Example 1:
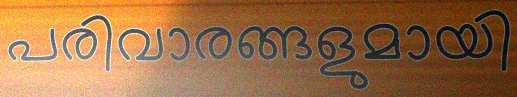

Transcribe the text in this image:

പരിവാരങ്ങളുമായി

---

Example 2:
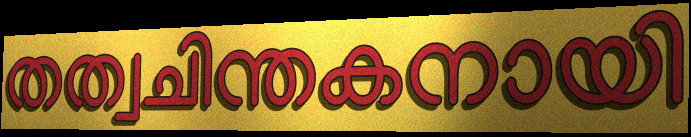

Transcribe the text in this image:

തത്വചിന്തകനായി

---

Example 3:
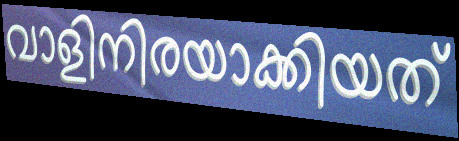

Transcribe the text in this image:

വാളിനിരയാക്കിയത്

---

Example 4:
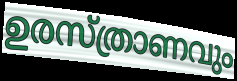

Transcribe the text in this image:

ഉരസ്ത്രാണവും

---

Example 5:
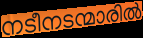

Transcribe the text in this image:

നടീനടന്മാരിൽ